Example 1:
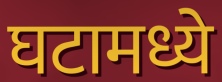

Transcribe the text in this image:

घटामध्ये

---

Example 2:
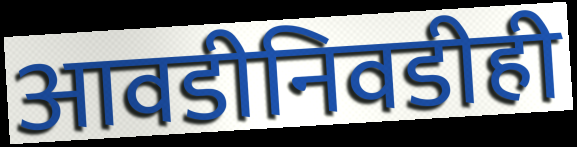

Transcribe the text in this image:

आवडीनिवडीही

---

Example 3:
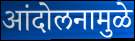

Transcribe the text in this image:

आंदोलनामुळे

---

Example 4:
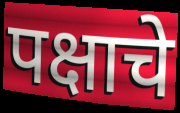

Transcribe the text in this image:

पक्षाचे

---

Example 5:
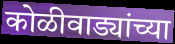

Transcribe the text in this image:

कोळीवाड्यांच्या